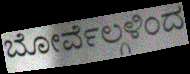
ಬೋರ್ವೆಲ್ಗಳಿಂದ